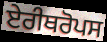
ਏਰੀਥਰੋਪਸ